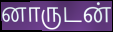
னாருடன்